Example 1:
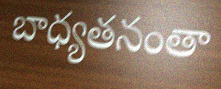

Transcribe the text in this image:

బాధ్యతనంతా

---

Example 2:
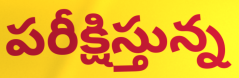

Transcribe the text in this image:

పరీక్షిస్తున్న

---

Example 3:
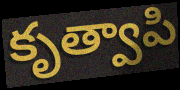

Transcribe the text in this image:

కృత్వాపి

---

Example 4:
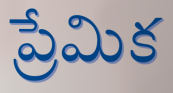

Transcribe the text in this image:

ప్రేమిక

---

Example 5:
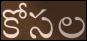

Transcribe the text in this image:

కోసల